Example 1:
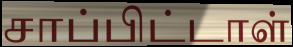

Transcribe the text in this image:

சாப்பிட்டாள்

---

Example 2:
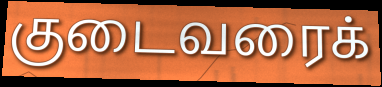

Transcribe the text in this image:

குடைவரைக்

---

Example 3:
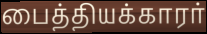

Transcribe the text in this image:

பைத்தியக்காரர்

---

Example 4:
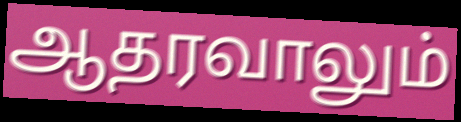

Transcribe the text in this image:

ஆதரவாலும்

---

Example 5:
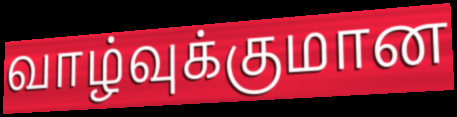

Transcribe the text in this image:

வாழ்வுக்குமான